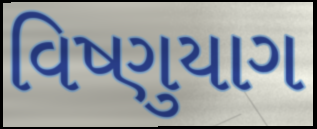
વિષ્ણુયાગ